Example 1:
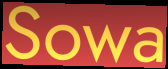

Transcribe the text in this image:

Sowa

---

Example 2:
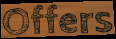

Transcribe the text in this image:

Offers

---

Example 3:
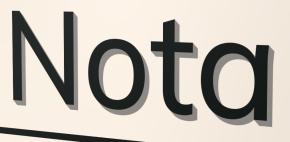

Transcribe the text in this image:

Nota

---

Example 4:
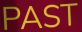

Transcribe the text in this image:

PAST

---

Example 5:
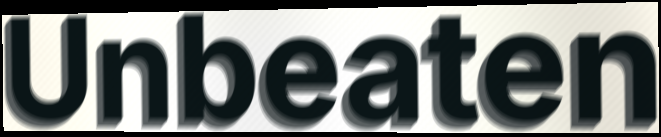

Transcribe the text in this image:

Unbeaten